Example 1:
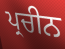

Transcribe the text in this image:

ਪ੍ਰਚੀਨ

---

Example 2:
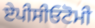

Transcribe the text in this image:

ਏਪੀਸੀਓਟੋਮੀ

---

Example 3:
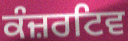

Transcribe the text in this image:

ਕੰਜ਼ਰਟਿਵ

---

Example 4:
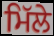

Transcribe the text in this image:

ਮਿੱਲੇ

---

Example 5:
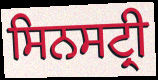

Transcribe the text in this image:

ਸਿਨਸਟ੍ਰੀ